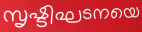
സൃഷ്ടിഘടനയെ